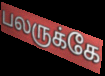
பலருக்கே